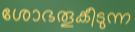
ശോഭതൂകീടുന്ന